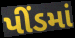
પીંડમાં